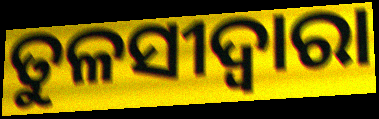
ତୁଳସୀଦ୍ବାରା